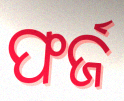
ଫର୍ଜ